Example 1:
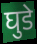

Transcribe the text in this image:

घुडे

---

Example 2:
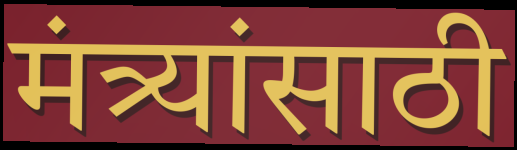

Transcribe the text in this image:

मंत्र्यांसाठी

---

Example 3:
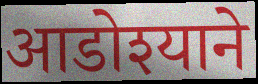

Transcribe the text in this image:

आडोश्याने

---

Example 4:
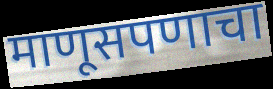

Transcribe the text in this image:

माणूसपणाचा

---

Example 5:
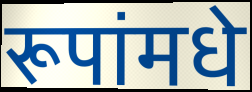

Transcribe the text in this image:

रूपांमधे